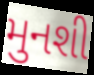
મુનશી